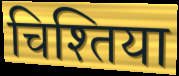
चिश्तिया